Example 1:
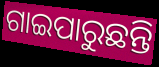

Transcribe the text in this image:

ଗାଇପାରୁଛନ୍ତି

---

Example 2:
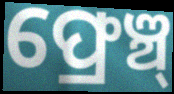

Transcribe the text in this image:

ଫ୍ରେଞ୍ଚ୍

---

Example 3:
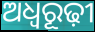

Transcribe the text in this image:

ଅଧ୍ଵରୂଢ଼ୀ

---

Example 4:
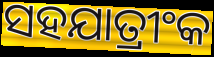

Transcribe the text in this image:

ସହଯାତ୍ରୀଂକ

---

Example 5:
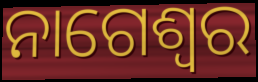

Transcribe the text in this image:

ନାଗେଶ୍ଵର